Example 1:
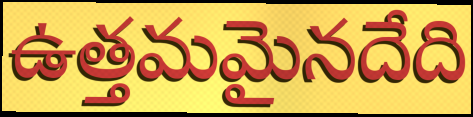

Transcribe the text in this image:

ఉత్తమమైనదేది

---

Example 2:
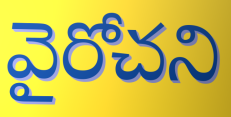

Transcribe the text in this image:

వైరోచని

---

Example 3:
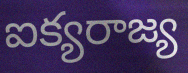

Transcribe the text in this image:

ఐక్యరాజ్య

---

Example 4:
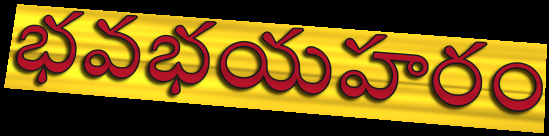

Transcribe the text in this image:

భవభయహరం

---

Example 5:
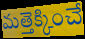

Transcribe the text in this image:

మత్తెక్కించే